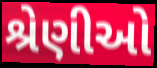
શ્રેણીઓ